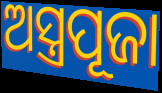
ଅସ୍ତ୍ରପୂଜା